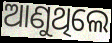
ଆଣୁଥିଲେ